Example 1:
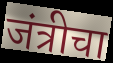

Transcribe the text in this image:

जंत्रीचा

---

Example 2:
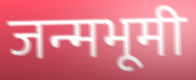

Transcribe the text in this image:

जन्मभूमी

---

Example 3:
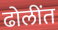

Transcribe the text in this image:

ढोलींत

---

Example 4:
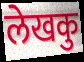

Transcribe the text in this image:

लेखकु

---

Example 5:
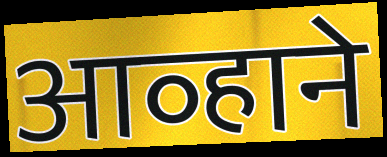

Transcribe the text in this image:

आव्हाने